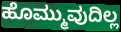
ಹೊಮ್ಮುವುದಿಲ್ಲ